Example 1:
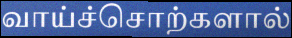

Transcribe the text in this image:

வாய்ச்சொற்களால்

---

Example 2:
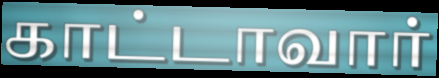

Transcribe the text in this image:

காட்டாவார்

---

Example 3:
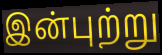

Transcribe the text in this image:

இன்புற்று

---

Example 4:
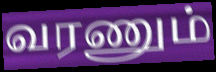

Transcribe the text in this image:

வரணும்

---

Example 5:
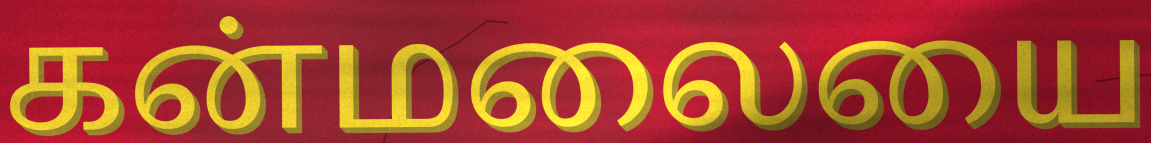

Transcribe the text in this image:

கன்மலையை